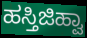
ಹಸ್ತಿಜಿಹ್ವಾ